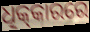
ଧିକ୍‌କାରରେ